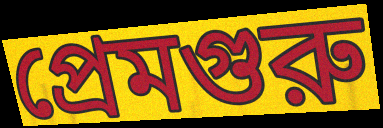
প্রেমগুরু